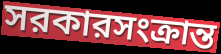
সরকারসংক্রান্ত